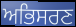
ਅਭਿਸਰਣ